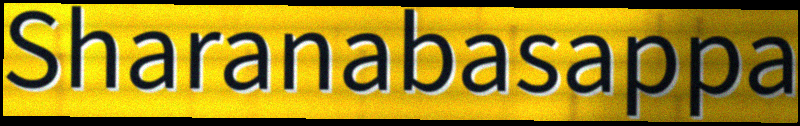
Sharanabasappa